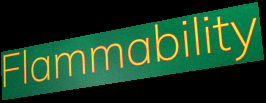
Flammability